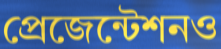
প্রেজেন্টেশনও